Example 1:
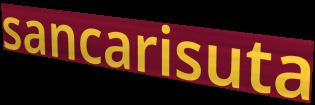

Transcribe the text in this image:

sancarisuta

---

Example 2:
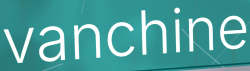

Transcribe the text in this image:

vanchine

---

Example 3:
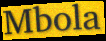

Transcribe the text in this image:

Mbola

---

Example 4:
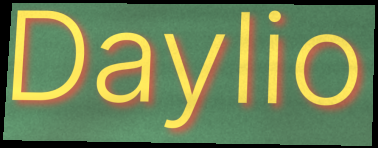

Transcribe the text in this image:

Daylio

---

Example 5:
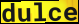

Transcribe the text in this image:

dulce